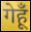
गेहूँ